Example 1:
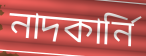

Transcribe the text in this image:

নাদকার্নি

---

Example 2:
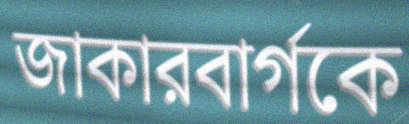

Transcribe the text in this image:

জাকারবার্গকে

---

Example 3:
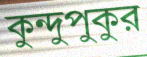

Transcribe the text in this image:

কুন্দুপুকুর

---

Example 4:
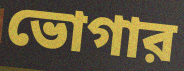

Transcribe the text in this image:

ভোগার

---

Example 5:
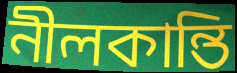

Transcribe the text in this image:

নীলকান্তি